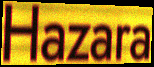
Hazara